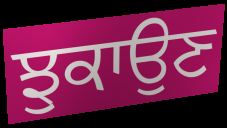
ਝੁਕਾਉਣ